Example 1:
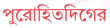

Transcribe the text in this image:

পুরোহিতদিগের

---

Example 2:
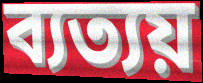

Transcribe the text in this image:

ব্যত্যয়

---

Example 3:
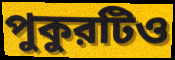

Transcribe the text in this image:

পুকুরটিও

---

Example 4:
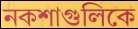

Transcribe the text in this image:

নকশাগুলিকে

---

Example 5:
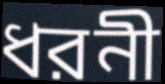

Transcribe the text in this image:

ধরনী